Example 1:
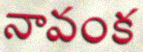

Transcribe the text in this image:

నావంక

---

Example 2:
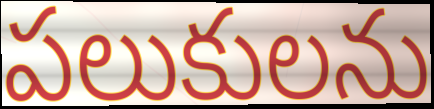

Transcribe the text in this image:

పలుకులను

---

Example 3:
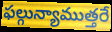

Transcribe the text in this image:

ఫల్గున్యాముత్తరే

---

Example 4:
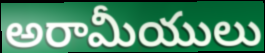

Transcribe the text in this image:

అరామీయులు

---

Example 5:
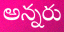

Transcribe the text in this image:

అన్నరు